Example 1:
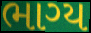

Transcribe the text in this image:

ભાગ્ય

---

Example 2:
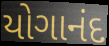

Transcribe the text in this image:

યોગાનંદ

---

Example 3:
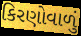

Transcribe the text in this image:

કિરણોવાળું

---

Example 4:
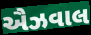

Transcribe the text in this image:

ઐઝવાલ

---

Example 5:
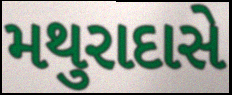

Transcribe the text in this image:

મથુરાદાસે